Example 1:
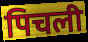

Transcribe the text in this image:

पिचली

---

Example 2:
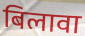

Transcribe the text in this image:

बिलावा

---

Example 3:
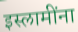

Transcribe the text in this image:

इस्लामींना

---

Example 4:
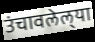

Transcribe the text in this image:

उंचावलेल्या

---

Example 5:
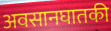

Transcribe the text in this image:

अवसानघातकी